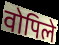
वोपिले